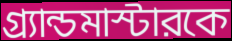
গ্র্যান্ডমাস্টারকে